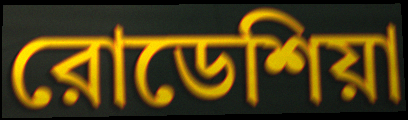
রোডেশিয়া